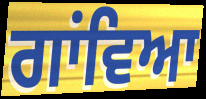
ਗਾਂਵਿਆ